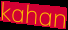
kahan